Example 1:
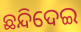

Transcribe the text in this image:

ଛନ୍ଦିଦେଇ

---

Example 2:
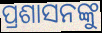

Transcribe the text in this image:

ପ୍ରଶାସନଙ୍କୁ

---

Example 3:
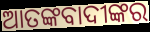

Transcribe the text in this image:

ଆତଙ୍କବାଦୀଙ୍କର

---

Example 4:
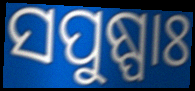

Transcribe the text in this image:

ସପୁଷ୍ପାଃ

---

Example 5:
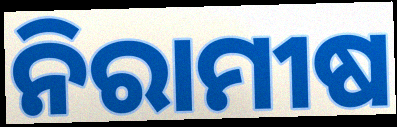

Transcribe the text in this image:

ନିରାମୀଷ